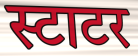
स्टाटर